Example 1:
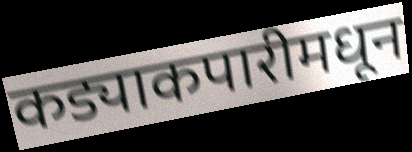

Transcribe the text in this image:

कड्याकपारीमधून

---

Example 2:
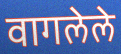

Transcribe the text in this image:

वागलेले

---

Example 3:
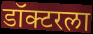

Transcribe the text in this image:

डॉक्टरला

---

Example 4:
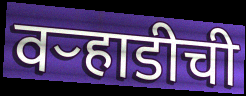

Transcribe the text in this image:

वऱ्हाडीची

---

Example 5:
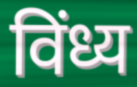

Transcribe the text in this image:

विंध्य